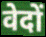
वेदों